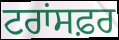
ਟਰਾਂਸਫ਼ਰ